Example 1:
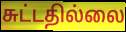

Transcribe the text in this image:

சுட்டதில்லை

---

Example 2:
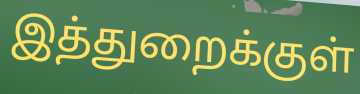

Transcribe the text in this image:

இத்துறைக்குள்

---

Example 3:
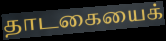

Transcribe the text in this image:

தாடகையைக்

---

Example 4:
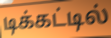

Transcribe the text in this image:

டிக்கட்டில்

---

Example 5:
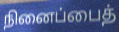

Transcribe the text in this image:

நினைப்பைத்